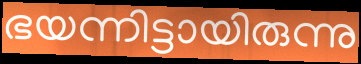
ഭയന്നിട്ടായിരുന്നു